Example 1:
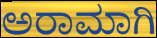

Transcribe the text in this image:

ಅರಾಮಾಗಿ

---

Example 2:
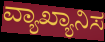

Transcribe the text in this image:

ವ್ಯಾಖ್ಯಾನಿಸ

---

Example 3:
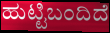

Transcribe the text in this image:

ಹುಟ್ಟಿಬಂದಿದೆ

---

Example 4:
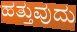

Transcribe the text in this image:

ಹತ್ತುವುದು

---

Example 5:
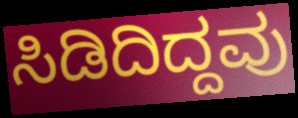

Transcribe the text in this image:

ಸಿಡಿದಿದ್ದವು